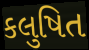
કલુષિત